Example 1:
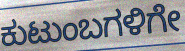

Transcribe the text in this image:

ಕುಟುಂಬಗಳಿಗೇ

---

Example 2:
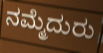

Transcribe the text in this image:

ನಮ್ಮೆದುರು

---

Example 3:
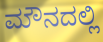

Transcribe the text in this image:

ಮೌನದಲ್ಲಿ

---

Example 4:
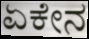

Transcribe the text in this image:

ಏಕೇನ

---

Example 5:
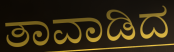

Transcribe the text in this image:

ತಾವಾಡಿದ